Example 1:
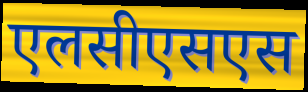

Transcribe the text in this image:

एलसीएसएस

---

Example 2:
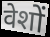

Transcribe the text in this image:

वेशों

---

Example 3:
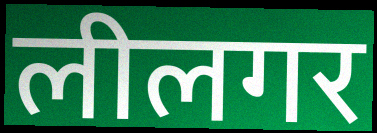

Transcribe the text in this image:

लीलगर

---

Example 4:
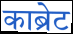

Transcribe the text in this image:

काब्रेट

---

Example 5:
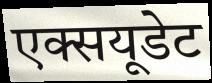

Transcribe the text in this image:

एक्सयूडेट